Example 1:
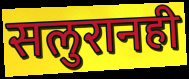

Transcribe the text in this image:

सलुरानही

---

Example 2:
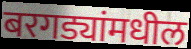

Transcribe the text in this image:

बरगड्यांमधील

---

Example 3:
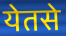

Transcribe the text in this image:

येतसे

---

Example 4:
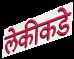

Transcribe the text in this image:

लेकीकडे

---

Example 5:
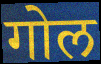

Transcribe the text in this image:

गोल